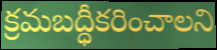
క్రమబద్ధీకరించాలని